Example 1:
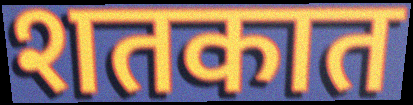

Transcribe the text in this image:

शतकात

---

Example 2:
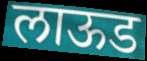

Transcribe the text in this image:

लाऊड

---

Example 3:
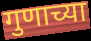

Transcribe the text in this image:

गुणाच्या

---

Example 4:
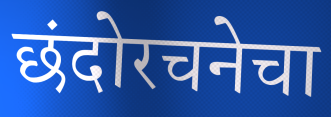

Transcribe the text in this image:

छंदोरचनेचा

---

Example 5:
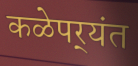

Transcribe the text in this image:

कळेपर्यंत